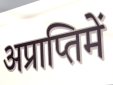
अप्राप्तिमें